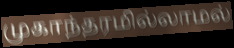
முகாந்தரமில்லாமல்